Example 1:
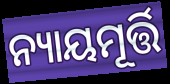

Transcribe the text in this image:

ନ୍ୟାୟମୂର୍ତ୍ତି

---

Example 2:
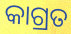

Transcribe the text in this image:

କାଗ୍ରତ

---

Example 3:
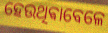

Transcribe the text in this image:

ହେଉଥିଵାବେଳେ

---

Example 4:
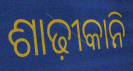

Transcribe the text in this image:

ଶାଢ଼ୀକାନି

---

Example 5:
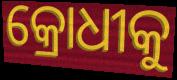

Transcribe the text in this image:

କ୍ରୋଧୀକୁ